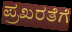
ಪ್ರಖರತೆಗೆ